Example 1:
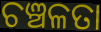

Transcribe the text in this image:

ଚଞ୍ଚଳତା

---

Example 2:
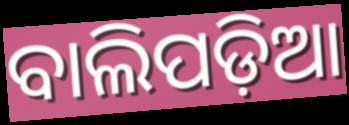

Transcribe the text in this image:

ବାଲିପଡ଼ିଆ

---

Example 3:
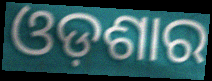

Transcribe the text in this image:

ଓଡ଼ଶାର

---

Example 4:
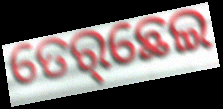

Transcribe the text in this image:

ତେର୍‌ଛେଇ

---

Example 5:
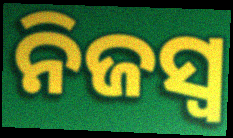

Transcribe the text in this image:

ନିଜସ୍ଵ